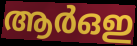
ആർഒഇ